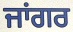
ਜਾਂਗਰ